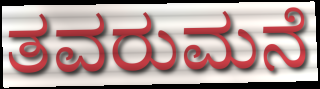
ತವರುಮನೆ